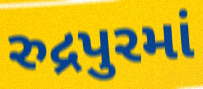
રુદ્રપુરમાં